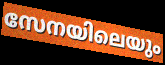
സേനയിലെയും